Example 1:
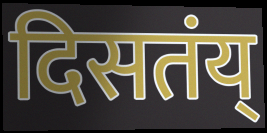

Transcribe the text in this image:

दिसतंय्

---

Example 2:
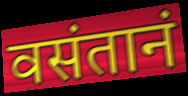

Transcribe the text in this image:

वसंतानं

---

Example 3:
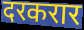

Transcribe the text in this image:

दरकरार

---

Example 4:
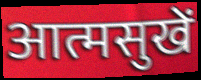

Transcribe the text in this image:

आत्मसुखें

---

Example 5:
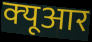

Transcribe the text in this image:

क्‍यूआर